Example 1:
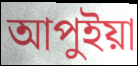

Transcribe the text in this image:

আপুইয়া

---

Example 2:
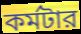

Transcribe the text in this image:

কর্মটার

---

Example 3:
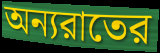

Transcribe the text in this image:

অন্যরাতের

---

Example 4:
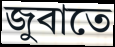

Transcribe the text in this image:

জুবাতে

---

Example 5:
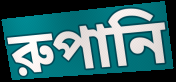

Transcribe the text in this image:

রুপানি